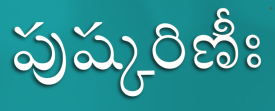
పుష్కరిణీః